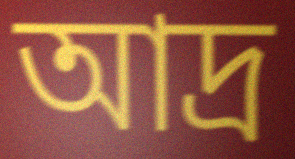
আদ্র